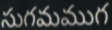
సుగమముగ